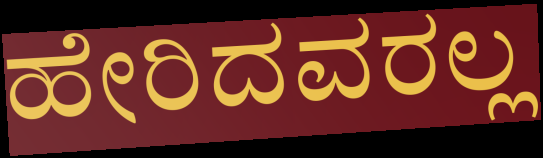
ಹೇರಿದವರಲ್ಲ